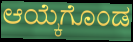
ಆಯ್ಕೆಗೊಂಡ